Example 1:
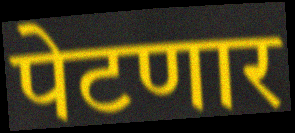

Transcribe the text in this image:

पेटणार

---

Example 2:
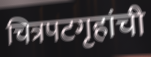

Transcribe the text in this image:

चित्रपटगृहांची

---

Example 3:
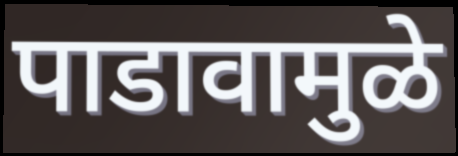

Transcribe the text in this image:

पाडावामुळे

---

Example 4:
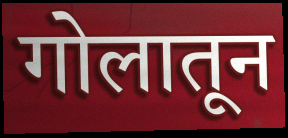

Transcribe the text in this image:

गोलातून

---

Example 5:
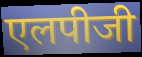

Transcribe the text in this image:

एलपीजी